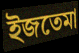
ইজতেমা